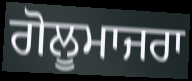
ਗੋਲੂਮਾਜਰਾ